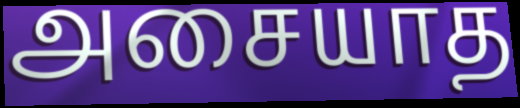
அசையாத